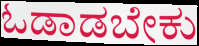
ಓಡಾಡಬೇಕು